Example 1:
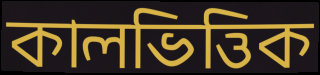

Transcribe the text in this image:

কালভিত্তিক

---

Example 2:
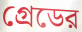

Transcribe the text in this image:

গ্রেডের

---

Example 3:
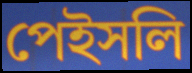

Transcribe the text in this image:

পেইসলি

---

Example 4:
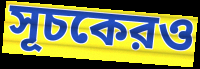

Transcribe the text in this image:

সূচকেরও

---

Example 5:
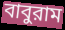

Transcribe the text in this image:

বাবুরাম